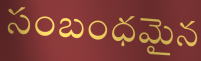
సంబంధమైన